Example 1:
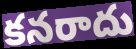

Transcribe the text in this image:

కనరాదు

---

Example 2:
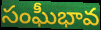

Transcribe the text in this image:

సంఘీభావ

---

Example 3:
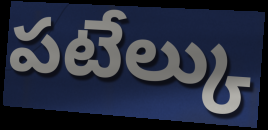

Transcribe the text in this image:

పటేల్కు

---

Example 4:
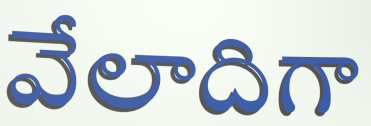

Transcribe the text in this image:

వేలాదిగా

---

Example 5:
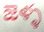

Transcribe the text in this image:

జెళ్ళ